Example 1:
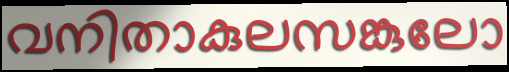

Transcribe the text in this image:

വനിതാകുലസങ്കുലോ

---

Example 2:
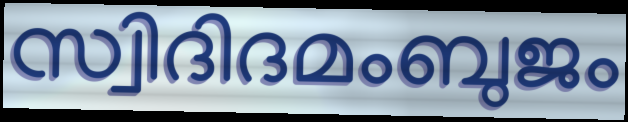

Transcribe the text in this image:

സ്വിദിദമംബുജം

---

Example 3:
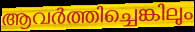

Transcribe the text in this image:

ആവർത്തിച്ചെങ്കിലും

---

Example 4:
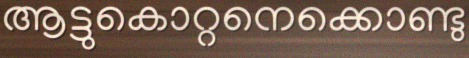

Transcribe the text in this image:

ആട്ടുകൊറ്റനെക്കൊണ്ടു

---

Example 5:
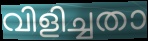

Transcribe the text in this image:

വിളിച്ചതാ